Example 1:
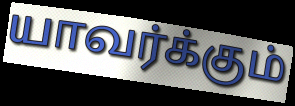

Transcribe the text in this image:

யாவர்க்கும்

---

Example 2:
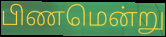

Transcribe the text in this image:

பிணமென்று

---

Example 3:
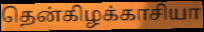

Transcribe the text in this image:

தென்கிழக்காசியா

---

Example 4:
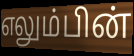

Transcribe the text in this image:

எலும்பின்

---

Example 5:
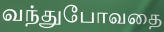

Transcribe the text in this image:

வந்துபோவதை